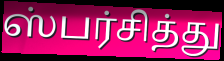
ஸ்பர்சித்து